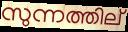
സുന്നത്തില്